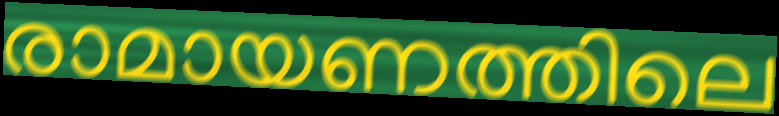
രാമായണത്തിലെ